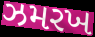
ઝમરખ